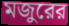
মজুরের